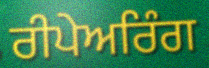
ਰੀਪੇਅਰਿੰਗ